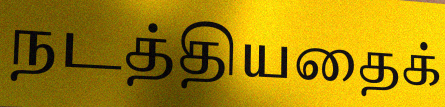
நடத்தியதைக்